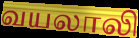
வயலாலி